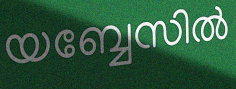
യബ്ബേസിൽ